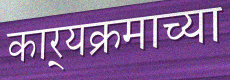
कार्यक्रमाच्या